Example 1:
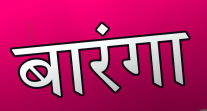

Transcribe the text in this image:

बारंगा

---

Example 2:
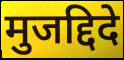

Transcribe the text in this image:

मुजद्दिदे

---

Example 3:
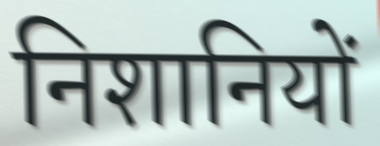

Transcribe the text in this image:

निशानियों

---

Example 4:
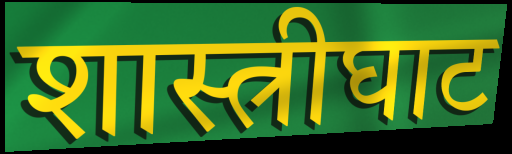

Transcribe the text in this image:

शास्त्रीघाट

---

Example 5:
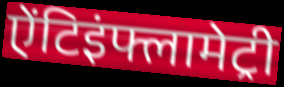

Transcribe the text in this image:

ऐंटिइंफ्लामेट्री